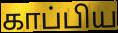
காப்பிய